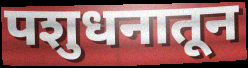
पशुधनातून